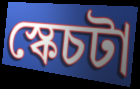
স্কেচটা